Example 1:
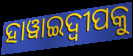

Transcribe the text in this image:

ହାୱାଇଦ୍ଵୀପକୁ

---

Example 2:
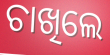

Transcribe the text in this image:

ଚାଖିଲେ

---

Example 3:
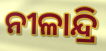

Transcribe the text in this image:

ନୀଳାନ୍ଦ୍ରି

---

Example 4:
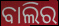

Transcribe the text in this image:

ବାଲିର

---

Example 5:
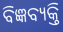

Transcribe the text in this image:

ବିଜ୍ଞବ୍ୟକ୍ତି